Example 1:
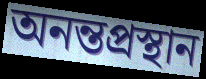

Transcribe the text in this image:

অনন্তপ্রস্থান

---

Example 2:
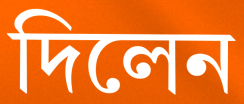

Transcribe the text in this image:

দিলেন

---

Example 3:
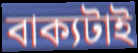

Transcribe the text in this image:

বাক্যটাই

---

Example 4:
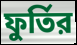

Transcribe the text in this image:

ফুর্তির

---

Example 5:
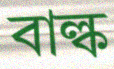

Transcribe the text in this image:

বাল্ক